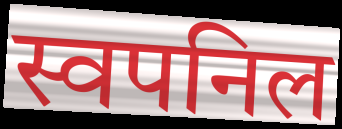
स्वपनिल